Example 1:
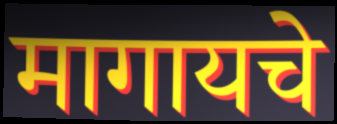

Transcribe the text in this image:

मागायचे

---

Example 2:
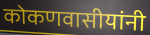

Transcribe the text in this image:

कोकणवासीयांनी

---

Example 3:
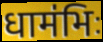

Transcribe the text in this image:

धाम॑भिः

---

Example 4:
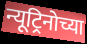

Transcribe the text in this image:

न्यूट्रिनोच्या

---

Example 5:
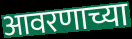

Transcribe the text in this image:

आवरणाच्या